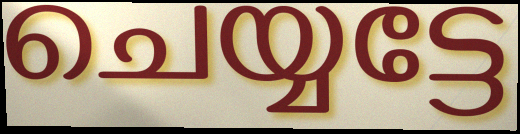
ചെയ്യട്ടേ